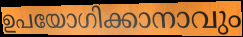
ഉപയോഗിക്കാനാവും